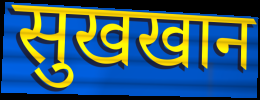
सुखखान